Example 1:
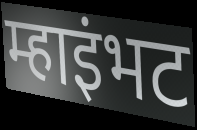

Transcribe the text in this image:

म्हाइंभट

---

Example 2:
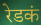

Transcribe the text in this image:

रेडकं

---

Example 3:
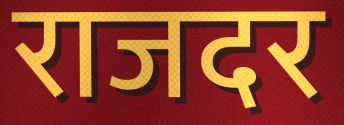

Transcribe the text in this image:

राजदर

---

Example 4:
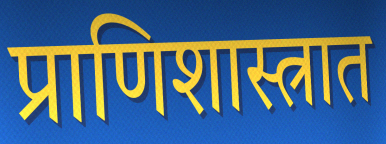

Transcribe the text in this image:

प्राणिशास्त्रात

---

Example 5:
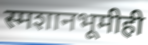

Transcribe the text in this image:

स्मशानभूमीही